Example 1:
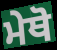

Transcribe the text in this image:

ਮੇਥੋ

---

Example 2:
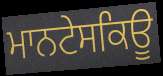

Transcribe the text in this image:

ਮਾਨਟੇਸਕਿਊ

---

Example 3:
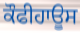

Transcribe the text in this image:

ਕੌਫੀਹਾਊਸ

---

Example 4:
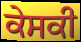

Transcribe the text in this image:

ਕੇਸਕੀ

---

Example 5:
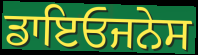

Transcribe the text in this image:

ਡਾਇਓਜਨੇਸ